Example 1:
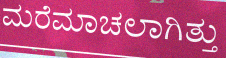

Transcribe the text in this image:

ಮರೆಮಾಚಲಾಗಿತ್ತು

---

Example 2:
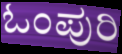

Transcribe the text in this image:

ಓಂಪುರಿ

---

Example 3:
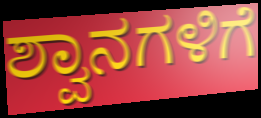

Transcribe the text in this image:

ಶ್ವಾನಗಳಿಗೆ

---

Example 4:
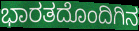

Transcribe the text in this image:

ಭಾರತದೊಂದಿಗಿನ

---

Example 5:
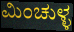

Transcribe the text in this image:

ಮಿಂಚುಳ್ಳ